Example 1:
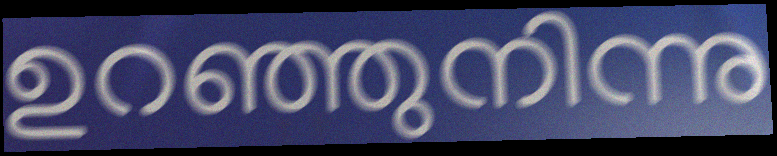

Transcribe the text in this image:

ഉറഞ്ഞുനിന്നു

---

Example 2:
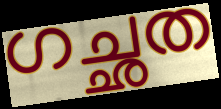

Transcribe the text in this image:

ഗച്ഛത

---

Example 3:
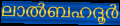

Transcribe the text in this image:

ലാൽബഹദൂർ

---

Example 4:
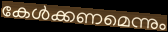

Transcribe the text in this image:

കേൾക്കണമെന്നും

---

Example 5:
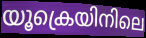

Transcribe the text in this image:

യൂക്രെയിനിലെ